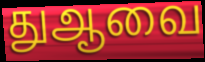
துஆவை